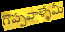
గొప్పవాళ్ళేమీ